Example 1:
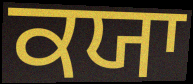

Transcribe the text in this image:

ਕਯਾ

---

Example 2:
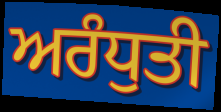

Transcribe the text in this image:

ਅਰੰਧੁਤੀ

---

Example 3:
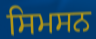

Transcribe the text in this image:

ਸਿਮਸਨ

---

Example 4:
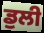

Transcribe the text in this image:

ਡੁਲੀ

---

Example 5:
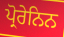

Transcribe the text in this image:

ਪ੍ਰੋਰੇਨਿਨ